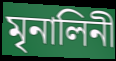
মৃনালিনী